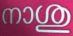
നാശു